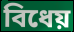
বিধেয়